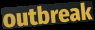
outbreak